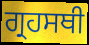
ਗ੍ਰਹਸਥੀ